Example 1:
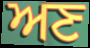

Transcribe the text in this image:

ਅਣ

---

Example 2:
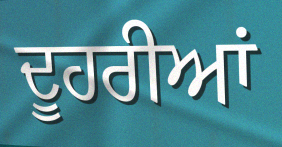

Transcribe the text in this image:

ਦੂਹਰੀਆਂ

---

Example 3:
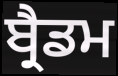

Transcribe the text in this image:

ਬ੍ਰੈਡਮ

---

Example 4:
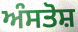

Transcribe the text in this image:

ਅੰਸਤੋਸ਼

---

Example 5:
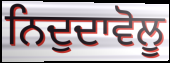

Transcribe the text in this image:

ਨਿਦੁਦਾਵੋਲੂ